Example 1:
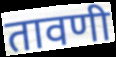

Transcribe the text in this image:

तावणी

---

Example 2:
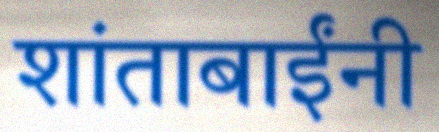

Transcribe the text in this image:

शांताबाईंनी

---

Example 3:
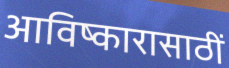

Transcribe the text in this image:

आविष्कारासाठीं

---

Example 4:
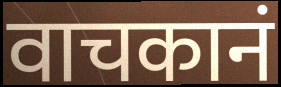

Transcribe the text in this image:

वाचकानं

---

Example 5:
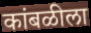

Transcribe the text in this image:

कांबळीला